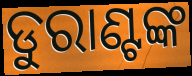
ଡୁରାଣ୍ଟଙ୍କ